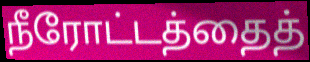
நீரோட்டத்தைத்